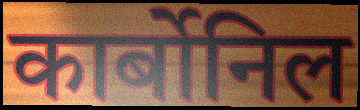
कार्बोनिल